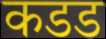
कडड